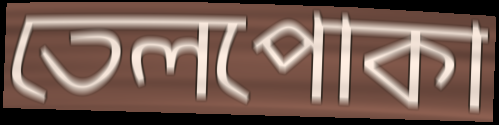
তেলপোকা